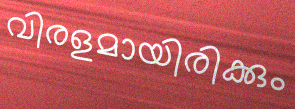
വിരളമായിരിക്കും